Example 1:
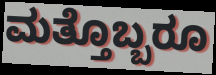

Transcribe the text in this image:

ಮತ್ತೊಬ್ಬರೂ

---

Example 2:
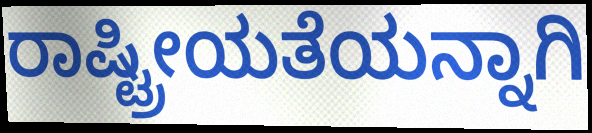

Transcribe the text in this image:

ರಾಷ್ಟ್ರೀಯತೆಯನ್ನಾಗಿ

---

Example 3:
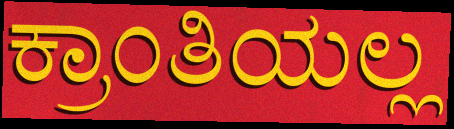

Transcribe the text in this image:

ಕ್ರಾಂತಿಯಲ್ಲ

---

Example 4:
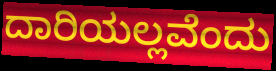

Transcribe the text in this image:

ದಾರಿಯಲ್ಲವೆಂದು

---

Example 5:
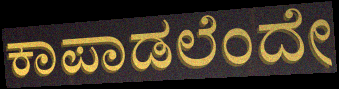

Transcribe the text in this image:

ಕಾಪಾಡಲೆಂದೇ